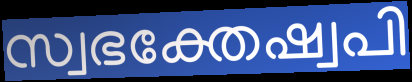
സ്വഭക്തേഷ്വപി